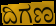
ದಿಗಣ